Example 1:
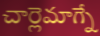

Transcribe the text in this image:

చార్లెమాగ్నే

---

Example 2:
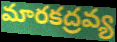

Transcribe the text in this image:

మారకద్రవ్య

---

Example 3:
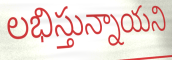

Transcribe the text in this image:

లభిస్తున్నాయని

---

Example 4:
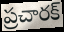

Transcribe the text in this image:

ప్రచారక్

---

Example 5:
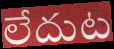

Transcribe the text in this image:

లేదుట